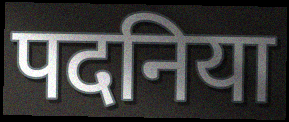
पदनिया